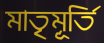
মাতৃমূর্তি